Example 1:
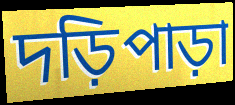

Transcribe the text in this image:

দড়িপাড়া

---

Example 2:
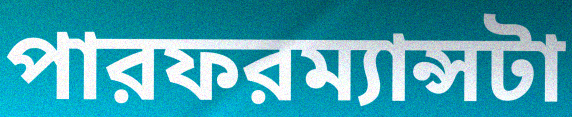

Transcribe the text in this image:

পারফরম্যান্সটা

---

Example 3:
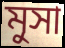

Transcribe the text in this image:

মুসা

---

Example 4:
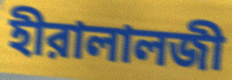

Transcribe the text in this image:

হীরালালজী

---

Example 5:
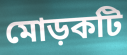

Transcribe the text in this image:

মোড়কটি